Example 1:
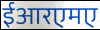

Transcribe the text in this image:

ईआरएमए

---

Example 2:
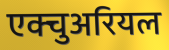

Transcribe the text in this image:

एक्चुअरियल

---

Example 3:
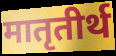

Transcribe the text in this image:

मातृतीर्थ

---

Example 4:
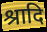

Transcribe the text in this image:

श्रादि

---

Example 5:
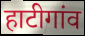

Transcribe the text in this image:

हाटीगांव